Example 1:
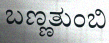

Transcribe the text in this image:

ಬಣ್ಣತುಂಬಿ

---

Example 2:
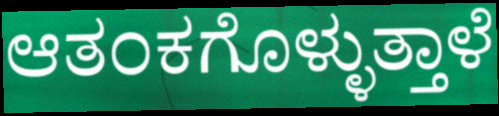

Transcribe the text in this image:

ಆತಂಕಗೊಳ್ಳುತ್ತಾಳೆ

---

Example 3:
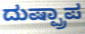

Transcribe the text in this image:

ದುಷ್ಪ್ರಾಪ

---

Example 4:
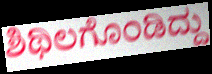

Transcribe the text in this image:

ಶಿಥಿಲಗೊಂಡಿದ್ದು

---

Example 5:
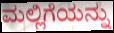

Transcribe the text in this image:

ಮಲ್ಲಿಗೆಯನ್ನು